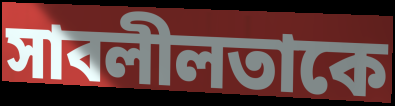
সাবলীলতাকে